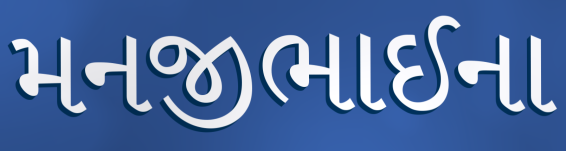
મનજીભાઈના